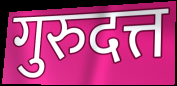
गुरुदत्त